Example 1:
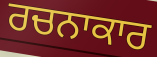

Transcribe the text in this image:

ਰਚਨਾਕਾਰ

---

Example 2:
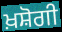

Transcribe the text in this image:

ਖ਼ਸ਼ੋਗੀ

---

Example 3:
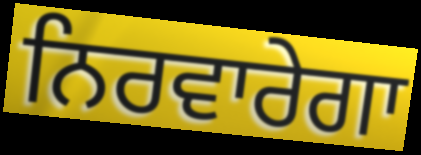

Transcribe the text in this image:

ਨਿਰਵਾਰੇਗਾ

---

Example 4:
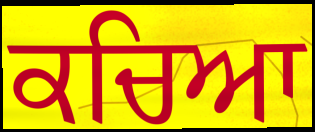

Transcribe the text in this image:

ਕਚਿਆ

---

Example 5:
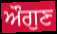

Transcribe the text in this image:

ਔਗੁਣ